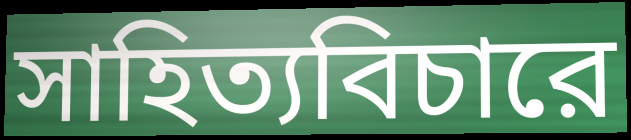
সাহিত্যবিচারে